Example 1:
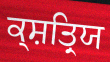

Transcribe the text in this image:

ਕ੍ਸ਼ਤ੍ਰਿਯ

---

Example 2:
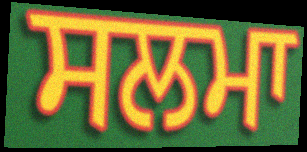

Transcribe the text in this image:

ਸਲਮਾ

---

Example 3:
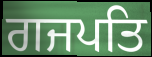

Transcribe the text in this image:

ਗਜਪਤਿ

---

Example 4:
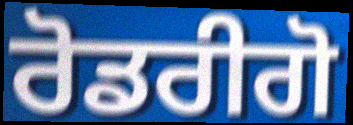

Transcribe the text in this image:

ਰੋਡਰੀਗੋ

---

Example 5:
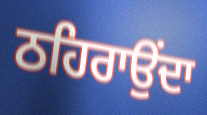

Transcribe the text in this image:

ਠਹਿਰਾਉਂਦਾ